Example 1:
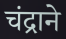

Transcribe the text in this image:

चंद्राने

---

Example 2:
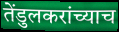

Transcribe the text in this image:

तेंडुलकरांच्याच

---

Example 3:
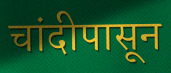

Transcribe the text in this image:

चांदीपासून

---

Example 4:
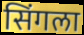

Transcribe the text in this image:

सिंगला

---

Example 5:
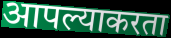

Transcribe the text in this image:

आपल्याकरता